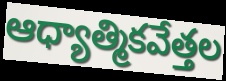
ఆధ్యాత్మికవేత్తల